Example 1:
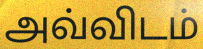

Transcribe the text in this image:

அவ்விடம்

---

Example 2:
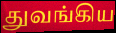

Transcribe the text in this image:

துவங்கிய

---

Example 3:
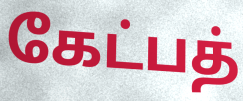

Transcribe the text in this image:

கேட்பத்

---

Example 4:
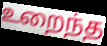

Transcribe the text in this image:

உறைந்த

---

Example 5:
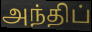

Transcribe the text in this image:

அந்திப்